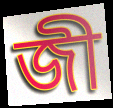
জী